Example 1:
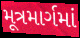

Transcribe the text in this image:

મૂત્રમાર્ગમાં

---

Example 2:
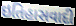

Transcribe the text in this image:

ઇતિહાસવાદી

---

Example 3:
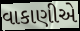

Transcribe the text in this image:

વાકાણીએ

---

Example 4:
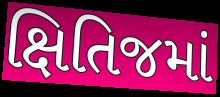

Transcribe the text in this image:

ક્ષિતિજમાં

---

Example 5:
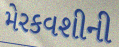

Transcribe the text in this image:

મેરકવશીની